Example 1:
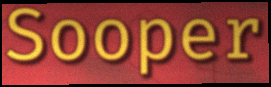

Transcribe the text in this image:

Sooper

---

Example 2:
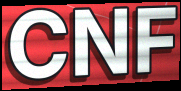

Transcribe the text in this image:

CNF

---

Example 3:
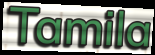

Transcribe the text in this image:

Tamila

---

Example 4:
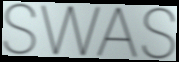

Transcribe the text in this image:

SWAS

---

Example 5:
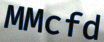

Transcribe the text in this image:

MMcfd